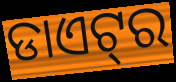
ଡାଏଟ୍‌ର